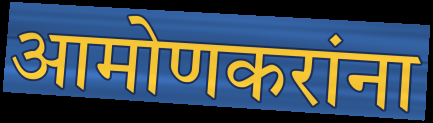
आमोणकरांना